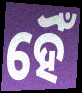
ହୈଁ